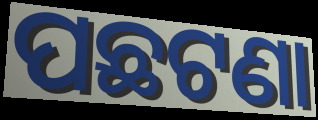
ପଛଟଣା